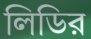
লিডির